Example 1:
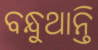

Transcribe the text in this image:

ବନ୍ଧୁଥାନ୍ତି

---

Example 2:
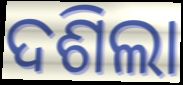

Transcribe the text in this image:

ଦଶିଲା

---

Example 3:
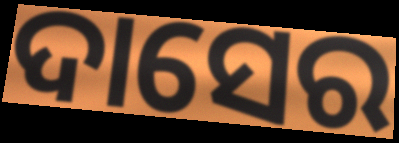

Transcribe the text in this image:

ଦାସେର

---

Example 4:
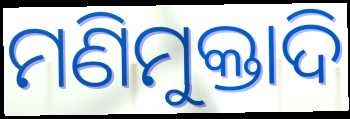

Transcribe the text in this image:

ମଣିମୁକ୍ତାଦି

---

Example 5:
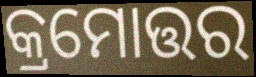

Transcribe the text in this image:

କ୍ରମୋତ୍ତର